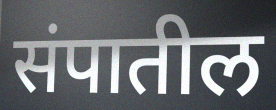
संपातील